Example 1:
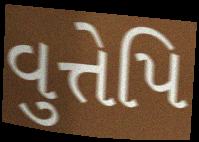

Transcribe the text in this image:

વુત્તેપિ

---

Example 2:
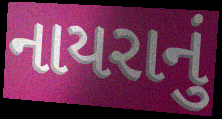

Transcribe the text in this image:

નાયરાનું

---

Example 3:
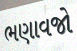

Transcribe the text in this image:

ભણાવજો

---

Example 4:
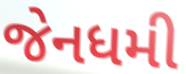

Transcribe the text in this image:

જેનધમી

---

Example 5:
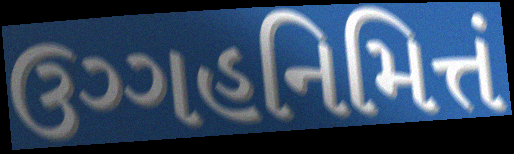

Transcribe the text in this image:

ઉગ્ગહનિમિત્તં